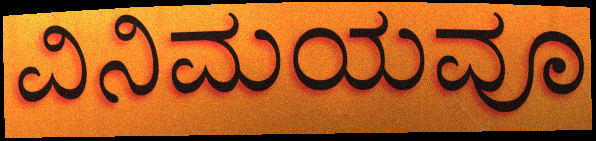
ವಿನಿಮಯವೂ